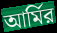
আর্মির